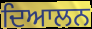
ਦਿਆਲਨ